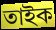
তাইক